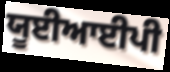
ਯੂਈਆਈਪੀ